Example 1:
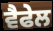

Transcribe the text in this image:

ਵੈਫੇਲ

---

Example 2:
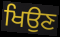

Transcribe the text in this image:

ਖਿਉਣ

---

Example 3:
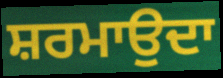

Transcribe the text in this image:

ਸ਼ਰਮਾਉਦਾ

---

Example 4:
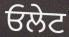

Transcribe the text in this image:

ਓਲੇਟ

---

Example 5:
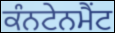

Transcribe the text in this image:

ਕੰਨਟੇਨਮੈਂਟ